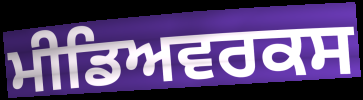
ਮੀਡਿਅਵਰਕਸ